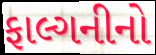
ફાલ્ગનીનો